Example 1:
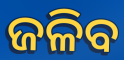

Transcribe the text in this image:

ଜଳିବ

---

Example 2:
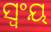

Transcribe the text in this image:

ସ୍ୱଂୟ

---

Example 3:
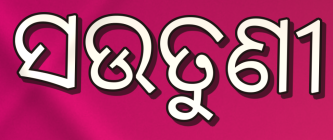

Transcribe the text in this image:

ସଉତୁଣୀ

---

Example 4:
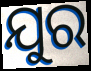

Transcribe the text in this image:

ଯୁର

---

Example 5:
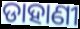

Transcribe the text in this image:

ଡାହାଣୀ